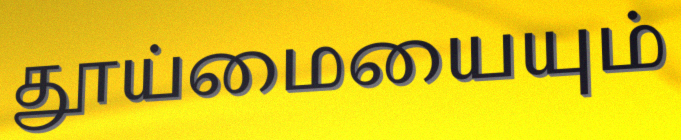
தூய்மையையும்